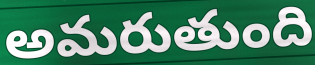
అమరుతుంది